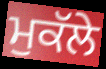
ਮੁਕੱਲੇ